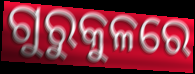
ଗୁରୁକୁଳରେ